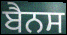
ਬੈਨਸ